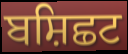
ਬਸ਼ਿਛਟ